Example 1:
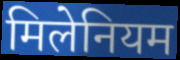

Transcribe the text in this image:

मिलेनियम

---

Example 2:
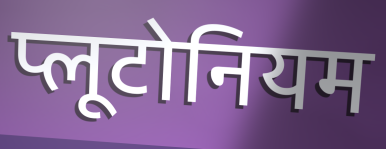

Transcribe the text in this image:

प्लूटोनियम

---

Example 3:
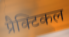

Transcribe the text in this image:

प्रैक्टिकल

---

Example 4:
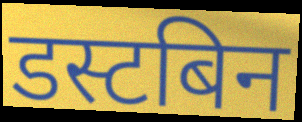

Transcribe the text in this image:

डस्टबिन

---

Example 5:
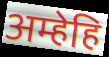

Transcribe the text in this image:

अम्हेहि